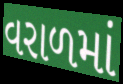
વરાળમાં